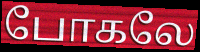
போகலே